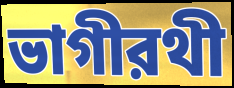
ভাগীরথী